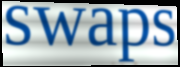
swaps